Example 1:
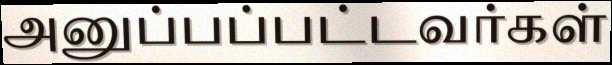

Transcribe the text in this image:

அனுப்பப்பட்டவர்கள்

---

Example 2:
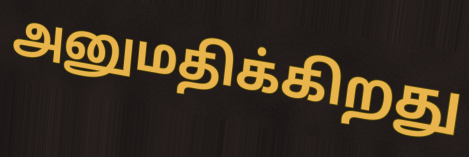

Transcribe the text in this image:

அனுமதிக்கிறது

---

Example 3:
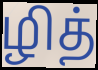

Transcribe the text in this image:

ழித்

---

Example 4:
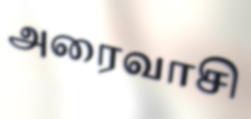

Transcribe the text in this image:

அரைவாசி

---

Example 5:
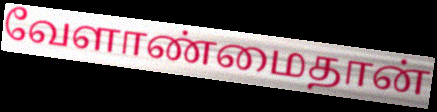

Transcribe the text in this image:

வேளாண்மைதான்